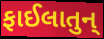
ફાઈલાતુન્